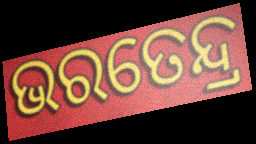
ଭରତେନ୍ଦ୍ର